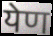
येण